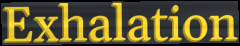
Exhalation